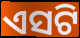
ଏସଟି